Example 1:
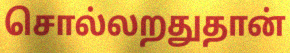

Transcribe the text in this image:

சொல்லறதுதான்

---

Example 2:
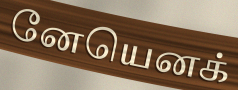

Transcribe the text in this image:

னேயெனக்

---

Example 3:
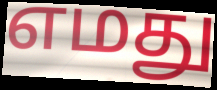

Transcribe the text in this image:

எமது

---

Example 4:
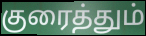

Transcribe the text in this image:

குரைத்தும்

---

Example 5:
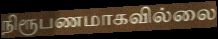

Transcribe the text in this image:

நிரூபணமாகவில்லை